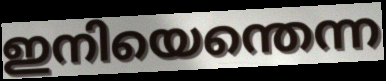
ഇനിയെന്തെന്ന